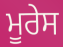
ਮੂਰੇਸ